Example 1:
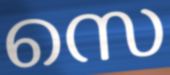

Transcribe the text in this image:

സെ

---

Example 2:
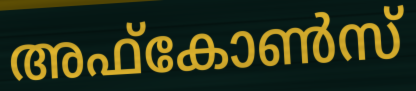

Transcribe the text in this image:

അഫ്കോൺസ്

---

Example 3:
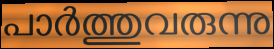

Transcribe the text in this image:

പാർത്തുവരുന്നു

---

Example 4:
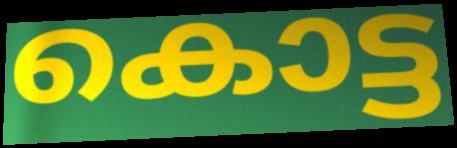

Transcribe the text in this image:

കൊട്ട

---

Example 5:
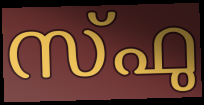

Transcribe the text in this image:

സ്ഫു